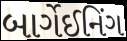
બાર્ગેઈનિંગ